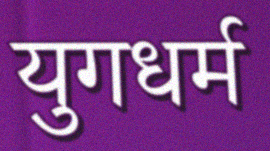
युगधर्म